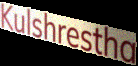
Kulshrestha